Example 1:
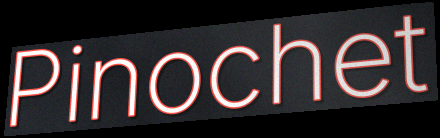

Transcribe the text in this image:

Pinochet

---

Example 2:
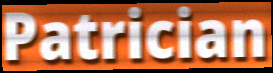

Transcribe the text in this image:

Patrician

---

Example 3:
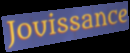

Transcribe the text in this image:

Jouissance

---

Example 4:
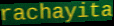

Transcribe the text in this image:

rachayita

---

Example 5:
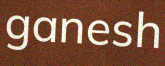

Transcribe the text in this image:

ganesh